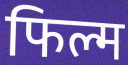
फिल्म